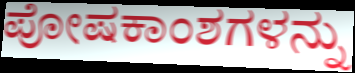
ಪೋಷಕಾಂಶಗಳನ್ನು